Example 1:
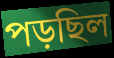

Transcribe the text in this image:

পড়ছিল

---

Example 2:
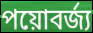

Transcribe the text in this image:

পয়োবর্জ্য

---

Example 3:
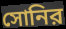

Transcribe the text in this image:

সোনির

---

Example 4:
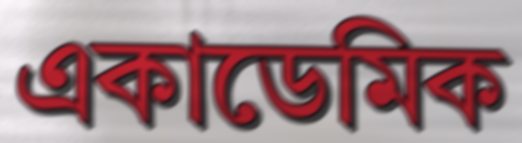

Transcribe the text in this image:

একাডেমিক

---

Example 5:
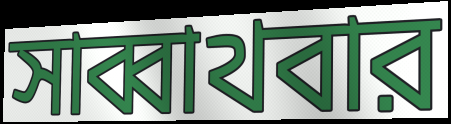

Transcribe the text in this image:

সাব্বাথবার